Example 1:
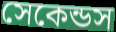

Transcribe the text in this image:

সেকেন্ডস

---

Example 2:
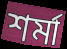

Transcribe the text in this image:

শর্মা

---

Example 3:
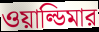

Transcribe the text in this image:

ওয়াল্ডিমার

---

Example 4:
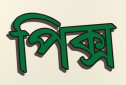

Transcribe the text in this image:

পিক্স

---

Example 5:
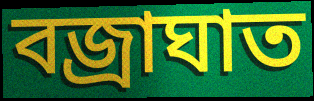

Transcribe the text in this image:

বজ্রাঘাত